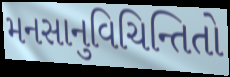
મનસાનુવિચિન્તિતો